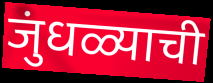
जुंधळ्याची